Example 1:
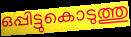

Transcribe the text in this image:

ഒപ്പിട്ടുകൊടുത്തു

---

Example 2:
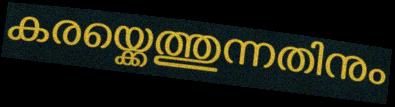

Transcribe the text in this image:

കരയ്ക്കെത്തുന്നതിനും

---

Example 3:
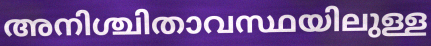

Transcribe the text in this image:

അനിശ്ചിതാവസ്ഥയിലുള്ള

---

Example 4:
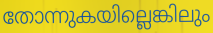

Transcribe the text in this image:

തോന്നുകയില്ലെങ്കിലും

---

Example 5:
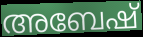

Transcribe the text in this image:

അബേഷ്